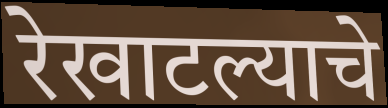
रेखाटल्याचे